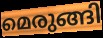
മെരുങ്ങി